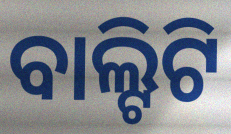
ବାଲ୍ଟିଟି